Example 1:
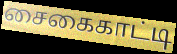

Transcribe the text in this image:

சைகைகாட்டி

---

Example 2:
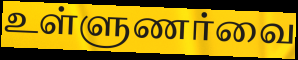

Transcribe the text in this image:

உள்ளுணர்வை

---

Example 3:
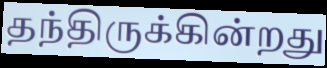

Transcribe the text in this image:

தந்திருக்கின்றது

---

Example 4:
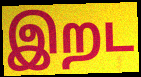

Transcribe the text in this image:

இறட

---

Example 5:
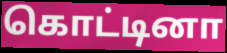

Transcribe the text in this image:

கொட்டினா